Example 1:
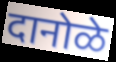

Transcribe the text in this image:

दानोळे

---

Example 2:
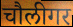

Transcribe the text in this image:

चौलीगर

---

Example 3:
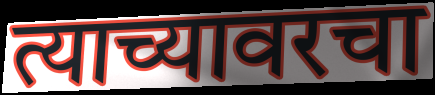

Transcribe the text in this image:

त्याच्यावरचा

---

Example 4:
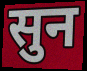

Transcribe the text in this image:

सुन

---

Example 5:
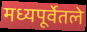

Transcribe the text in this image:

मध्यपूर्वेतले